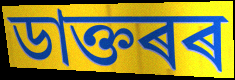
ডাক্তৰৰ